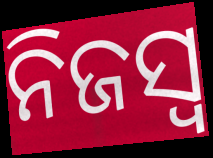
ନିଜସ୍ୱ